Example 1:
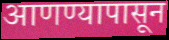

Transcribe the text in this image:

आणण्यापासून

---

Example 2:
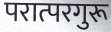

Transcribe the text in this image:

परात्परगुरू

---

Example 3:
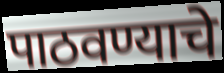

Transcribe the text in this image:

पाठवण्याचे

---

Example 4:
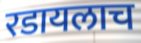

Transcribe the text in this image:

रडायलाच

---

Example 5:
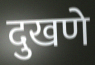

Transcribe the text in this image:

दुखणे